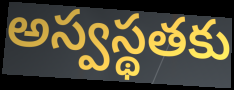
అస్వస్థతకు